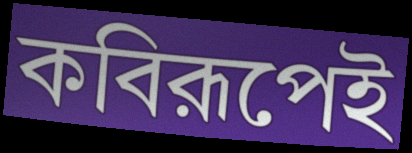
কবিরূপেই